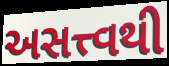
અસત્ત્વથી